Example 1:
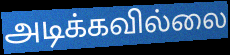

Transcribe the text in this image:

அடிக்கவில்லை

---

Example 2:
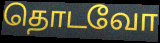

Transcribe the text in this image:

தொடவோ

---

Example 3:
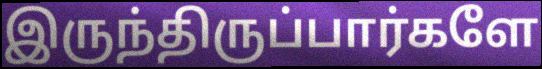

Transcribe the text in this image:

இருந்திருப்பார்களே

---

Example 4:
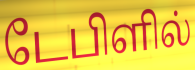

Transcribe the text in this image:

டேபிளில்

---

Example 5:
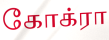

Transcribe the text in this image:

கோக்ரா